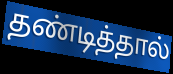
தண்டித்தால்